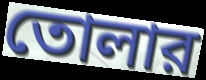
তোলার